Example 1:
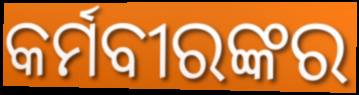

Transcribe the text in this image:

କର୍ମବୀରଙ୍କର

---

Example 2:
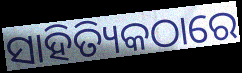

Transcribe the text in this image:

ସାହିତ୍ୟିକଠାରେ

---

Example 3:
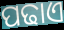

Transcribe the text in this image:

ପଢାଏ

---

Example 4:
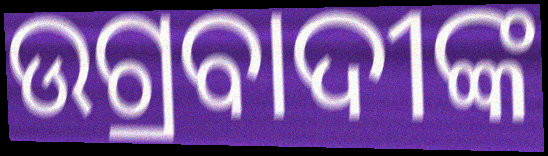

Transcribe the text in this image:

ଉଗ୍ରବାଦୀଙ୍କ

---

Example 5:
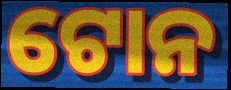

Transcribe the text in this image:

ଟୋନ